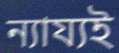
ন্যায্যই